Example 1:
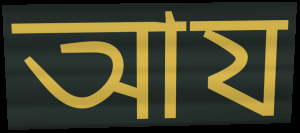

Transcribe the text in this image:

আয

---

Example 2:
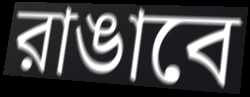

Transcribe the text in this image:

রাঙাবে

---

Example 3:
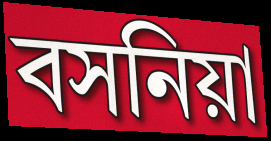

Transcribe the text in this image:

বসনিয়া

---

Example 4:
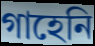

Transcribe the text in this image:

গাহেনি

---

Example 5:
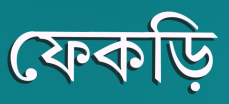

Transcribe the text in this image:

ফেকড়ি